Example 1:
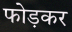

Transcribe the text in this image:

फोड़कर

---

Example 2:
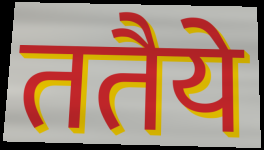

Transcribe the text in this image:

ततैये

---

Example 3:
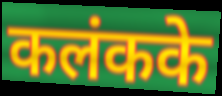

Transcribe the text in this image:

कलंकके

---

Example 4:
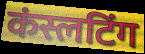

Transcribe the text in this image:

कंस्लटिंग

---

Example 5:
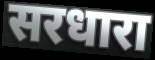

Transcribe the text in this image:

सरधारा